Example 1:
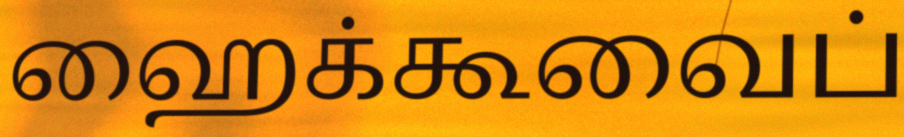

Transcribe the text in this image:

ஹைக்கூவைப்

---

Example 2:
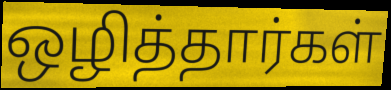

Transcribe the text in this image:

ஒழித்தார்கள்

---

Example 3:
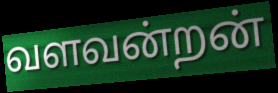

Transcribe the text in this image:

வளவன்றன்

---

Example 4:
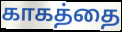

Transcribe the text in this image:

காகத்தை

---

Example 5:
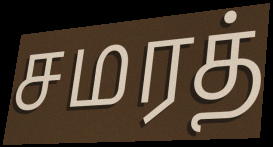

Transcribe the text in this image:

சமரத்